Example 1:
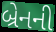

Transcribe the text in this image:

બ્રેનની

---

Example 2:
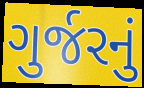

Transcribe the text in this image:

ગુર્જરનું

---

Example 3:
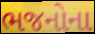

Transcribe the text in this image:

ભજનોના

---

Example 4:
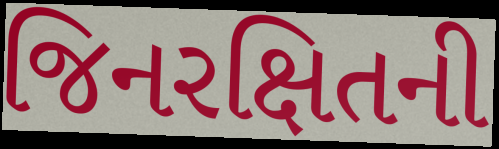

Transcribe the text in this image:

જિનરક્ષિતની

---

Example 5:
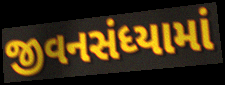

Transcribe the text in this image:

જીવનસંધ્યામાં